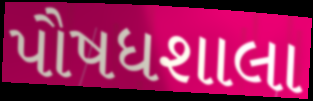
પૌષધશાલા